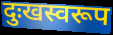
दुःखस्वरूप